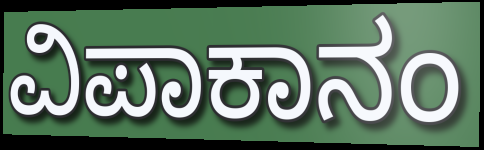
ವಿಪಾಕಾನಂ